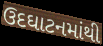
ઉદઘાટનમાંથી